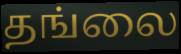
தங்லை